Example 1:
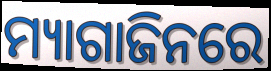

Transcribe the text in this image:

ମ୍ୟାଗାଜିନରେ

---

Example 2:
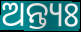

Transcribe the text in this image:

ଅନ୍ତ୍ୟଃ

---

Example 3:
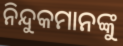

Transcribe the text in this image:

ନିନ୍ଦୁକମାନଙ୍କୁ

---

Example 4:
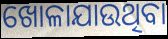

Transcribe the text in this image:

ଖୋଳାଯାଉଥିବା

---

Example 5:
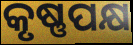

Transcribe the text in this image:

କୃଷ୍ଣପକ୍ଷ